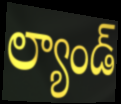
ల్యాండ్